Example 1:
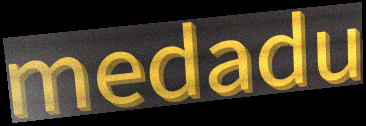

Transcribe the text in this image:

medadu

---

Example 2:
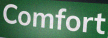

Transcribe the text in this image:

Comfort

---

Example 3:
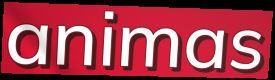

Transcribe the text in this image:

animas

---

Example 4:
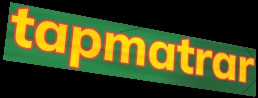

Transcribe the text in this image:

tapmatrar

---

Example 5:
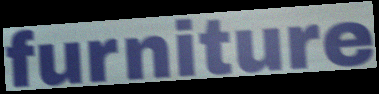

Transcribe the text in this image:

furniture